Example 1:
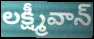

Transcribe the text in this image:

లక్ష్మీవాన్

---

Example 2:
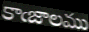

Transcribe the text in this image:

కాఁజాలము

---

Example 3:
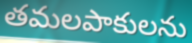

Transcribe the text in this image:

తమలపాకులను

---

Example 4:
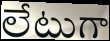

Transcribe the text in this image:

లేటుగా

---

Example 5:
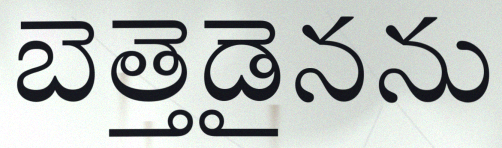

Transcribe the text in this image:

బెత్తెడైనను